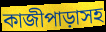
কাজীপাড়াসহ